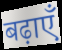
बढ़ाएँ